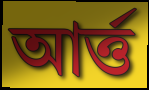
আৰ্ত্ত